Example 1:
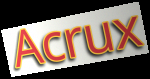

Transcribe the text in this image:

Acrux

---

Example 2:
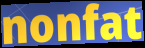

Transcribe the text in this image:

nonfat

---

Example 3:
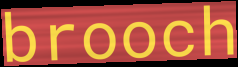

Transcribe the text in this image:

brooch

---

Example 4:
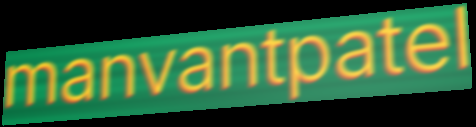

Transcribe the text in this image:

manvantpatel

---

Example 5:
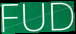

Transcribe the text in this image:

FUD